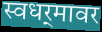
स्वधर्मावर